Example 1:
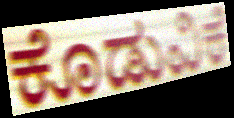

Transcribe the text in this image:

ಕೊಡುವಿಕೆ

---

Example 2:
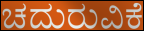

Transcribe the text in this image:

ಚದುರುವಿಕೆ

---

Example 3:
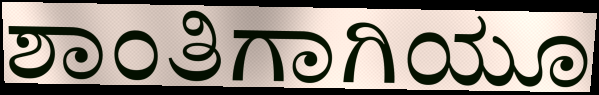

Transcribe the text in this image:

ಶಾಂತಿಗಾಗಿಯೂ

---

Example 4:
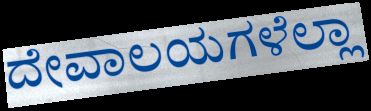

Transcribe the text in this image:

ದೇವಾಲಯಗಳೆಲ್ಲಾ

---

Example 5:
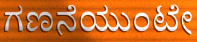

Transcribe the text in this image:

ಗಣನೆಯುಂಟೇ